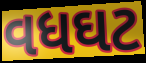
વધઘટ